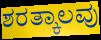
ಶರತ್ಕಾಲವು